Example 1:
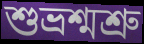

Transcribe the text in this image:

শুভ্রশ্মশ্রু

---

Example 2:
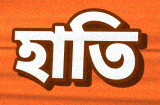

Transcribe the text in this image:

হাতি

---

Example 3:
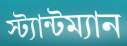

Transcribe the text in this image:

স্ট্যান্টম্যান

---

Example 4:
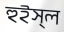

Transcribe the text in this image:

হুইস্‌ল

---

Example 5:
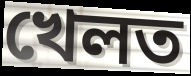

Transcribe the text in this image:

খেলত